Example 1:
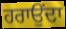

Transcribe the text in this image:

ਹਰਾਉਂਦਾ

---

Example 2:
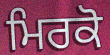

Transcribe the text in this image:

ਮਿਰਕੋ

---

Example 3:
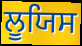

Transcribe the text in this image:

ਲੂਯਿਸ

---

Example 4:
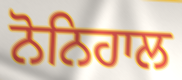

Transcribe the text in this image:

ਨੋਨਿਹਾਲ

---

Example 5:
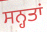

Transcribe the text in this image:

ਸਨ੍ਹਤਾਂ